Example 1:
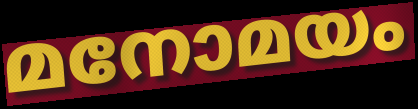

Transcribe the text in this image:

മനോമയം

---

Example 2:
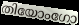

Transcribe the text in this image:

തിയോംഗോ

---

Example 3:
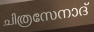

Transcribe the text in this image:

ചിത്രസേനാദ്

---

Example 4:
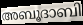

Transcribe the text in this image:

അബൂദാബി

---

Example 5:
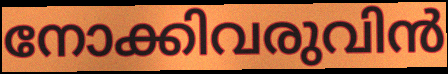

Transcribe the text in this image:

നോക്കിവരുവിൻ